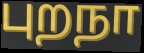
புறநா